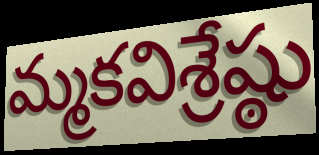
మ్మకవిశ్రేష్ఠు